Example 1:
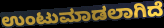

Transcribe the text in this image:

ಉಂಟುಮಾಡಲಾಗಿದೆ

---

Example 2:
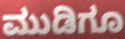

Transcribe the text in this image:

ಮುಡಿಗೂ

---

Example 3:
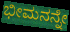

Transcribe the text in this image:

ಭೀಮನನ್ನೇ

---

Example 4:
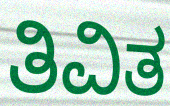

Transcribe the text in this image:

ತಿವಿತ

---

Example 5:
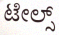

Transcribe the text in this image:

ಟೇಲ್ಸ್